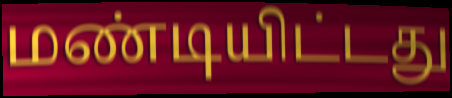
மண்டியிட்டது